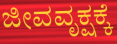
ಜೀವವೃಕ್ಷಕ್ಕೆ